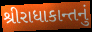
શ્રીરાધાકાન્તનું